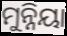
ମୁନ୍ନିୟା